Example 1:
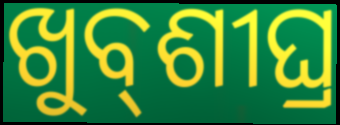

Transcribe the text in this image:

ଖୁବ୍‌ଶୀଘ୍ର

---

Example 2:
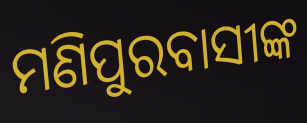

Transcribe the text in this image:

ମଣିପୁରବାସୀଙ୍କ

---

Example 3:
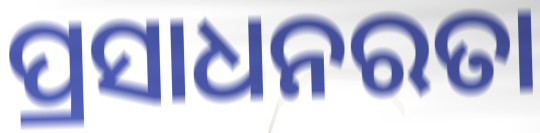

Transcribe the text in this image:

ପ୍ରସାଧନରତା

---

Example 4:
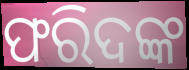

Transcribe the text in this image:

ଫରିଦଙ୍କ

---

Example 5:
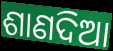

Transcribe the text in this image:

ଶାଣଦିଆ